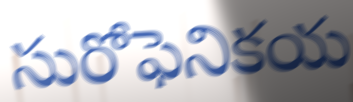
సురోఫెనికయ